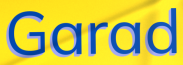
Garad